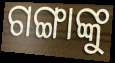
ଗଙ୍ଗାଙ୍କୁ